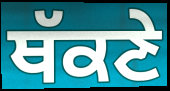
ਥੱਕਣੇ